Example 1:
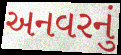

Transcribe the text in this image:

અનવરનું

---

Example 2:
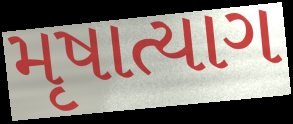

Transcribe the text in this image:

મૃષાત્યાગ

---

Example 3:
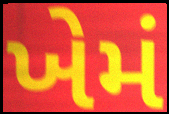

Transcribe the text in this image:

ખેમં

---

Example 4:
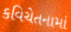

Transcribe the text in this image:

કવિચેતનામાં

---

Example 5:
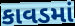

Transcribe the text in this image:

કાવડમાં